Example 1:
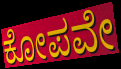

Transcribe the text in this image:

ಕೋಪವೇ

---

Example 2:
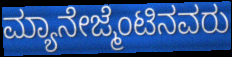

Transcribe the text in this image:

ಮ್ಯಾನೇಜ್ಮೆಂಟಿನವರು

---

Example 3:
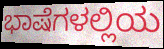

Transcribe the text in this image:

ಭಾಷೆಗಳಲ್ಲಿಯ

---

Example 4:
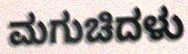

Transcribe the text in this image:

ಮಗುಚಿದಳು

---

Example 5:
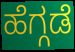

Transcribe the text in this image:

ಹೆಗ್ಗಡೆ